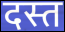
दस्त